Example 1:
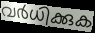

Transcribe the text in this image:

വർധിക്കുക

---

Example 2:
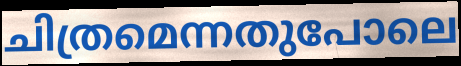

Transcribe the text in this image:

ചിത്രമെന്നതുപോലെ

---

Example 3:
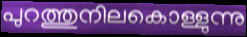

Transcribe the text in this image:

പുറത്തുനിലകൊള്ളുന്നു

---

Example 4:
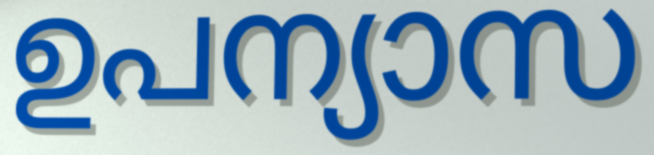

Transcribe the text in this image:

ഉപന്യാസ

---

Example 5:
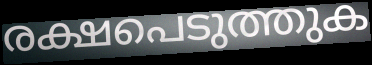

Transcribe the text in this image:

രക്ഷപെടുത്തുക